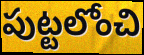
పుట్టలోంచి